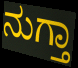
ನುಗ್ತಾ